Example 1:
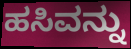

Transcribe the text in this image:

ಹಸಿವನ್ನು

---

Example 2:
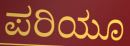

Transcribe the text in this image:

ಪರಿಯೂ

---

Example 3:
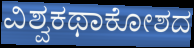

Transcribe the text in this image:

ವಿಶ್ವಕಥಾಕೋಶದ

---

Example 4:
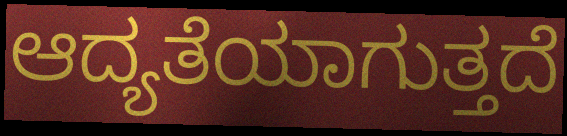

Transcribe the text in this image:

ಆದ್ಯತೆಯಾಗುತ್ತದೆ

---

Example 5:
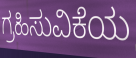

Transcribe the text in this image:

ಗ್ರಹಿಸುವಿಕೆಯ